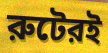
রুটেরই